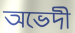
অভেদী